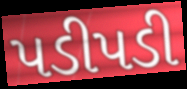
પડીપડી